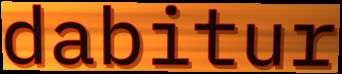
dabitur